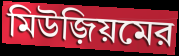
মিউজ়িয়মের